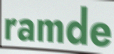
ramde